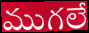
ముగలే